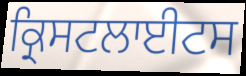
ਕ੍ਰਿਸਟਲਾਈਟਸ